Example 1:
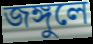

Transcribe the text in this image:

জঙ্গুলে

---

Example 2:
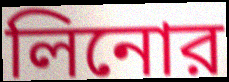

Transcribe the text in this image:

লিনোর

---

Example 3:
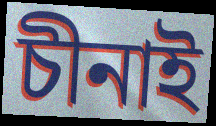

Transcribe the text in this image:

চীনাই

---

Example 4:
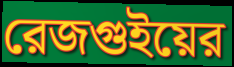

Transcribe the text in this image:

রেজগুইয়ের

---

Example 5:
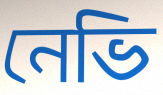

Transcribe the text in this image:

নেভি